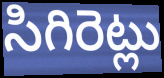
సిగిరెట్లు